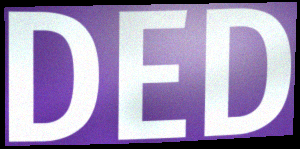
DED